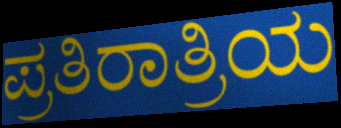
ಪ್ರತಿರಾತ್ರಿಯ